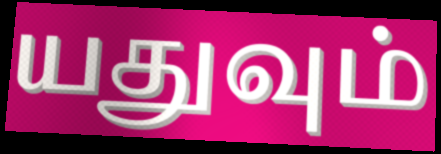
யதுவும்